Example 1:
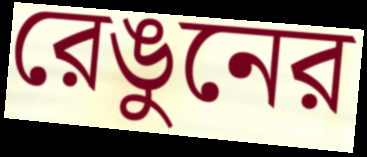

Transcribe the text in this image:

রেঙুনের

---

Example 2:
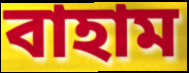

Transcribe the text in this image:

বাহাম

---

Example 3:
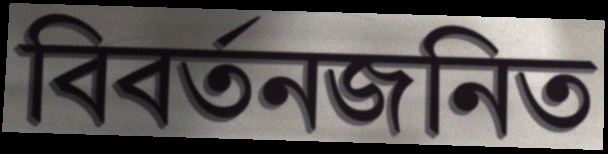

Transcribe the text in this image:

বিবর্তনজনিত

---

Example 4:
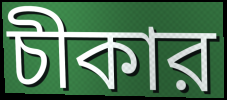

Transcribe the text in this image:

চীকার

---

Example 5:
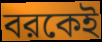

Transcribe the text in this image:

বরকেই